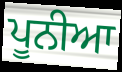
ਪੂਨੀਆ